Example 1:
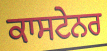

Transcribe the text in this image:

ਕਾਸਟੇਨਰ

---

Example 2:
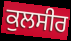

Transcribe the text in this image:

ਕੁਲਸੀਰ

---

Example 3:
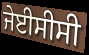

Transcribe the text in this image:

ਜੇਈਸੀਸੀ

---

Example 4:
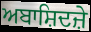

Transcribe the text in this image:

ਅਬਾਸ਼ਿਦਜ਼ੇ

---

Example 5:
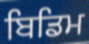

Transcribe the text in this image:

ਬਿਡਿਮ